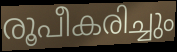
രൂപീകരിച്ചും